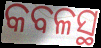
କବଳସ୍ଥ